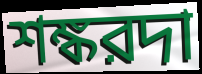
শঙ্করদা